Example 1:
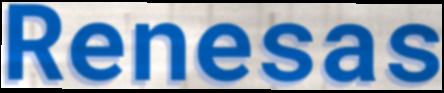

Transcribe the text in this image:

Renesas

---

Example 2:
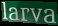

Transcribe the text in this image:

larva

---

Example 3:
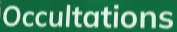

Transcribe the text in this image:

Occultations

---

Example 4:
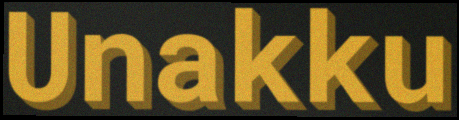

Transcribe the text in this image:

Unakku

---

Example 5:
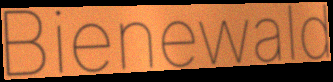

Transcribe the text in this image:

Bienewald